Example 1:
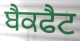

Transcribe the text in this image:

ਬੈਕਫੈਟ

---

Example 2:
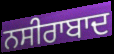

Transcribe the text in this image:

ਨਸੀਰਾਬਾਦ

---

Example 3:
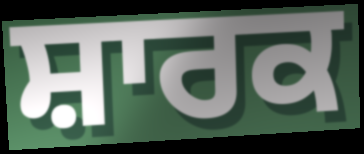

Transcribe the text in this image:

ਸ਼ਾਰਕ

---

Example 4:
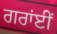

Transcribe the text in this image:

ਗਰਾਂਈਂ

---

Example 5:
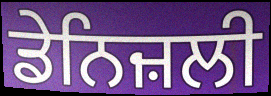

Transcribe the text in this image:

ਡੇਨਿਜ਼ਲੀ